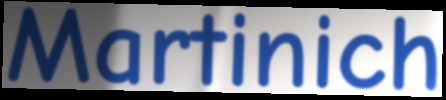
Martinich